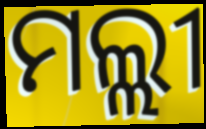
ମଲ୍ଲୀ